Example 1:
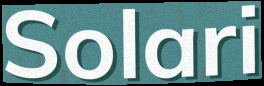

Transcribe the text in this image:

Solari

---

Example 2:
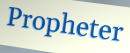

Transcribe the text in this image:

Propheter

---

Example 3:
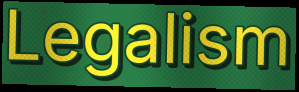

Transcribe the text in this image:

Legalism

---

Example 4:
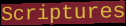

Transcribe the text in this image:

Scriptures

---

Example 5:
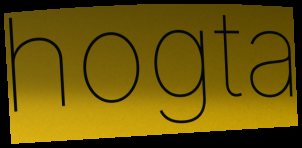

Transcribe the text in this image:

hogta